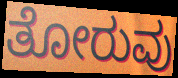
ತೋರುವು